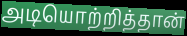
அடியொற்றித்தான்